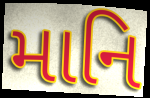
માનિ